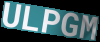
ULPGM